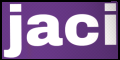
jaci